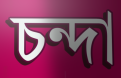
চন্দা